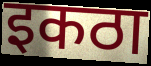
इकठा